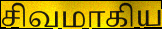
சிவமாகிய